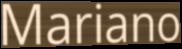
Mariano